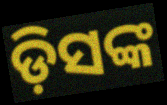
ଡ଼ିସଙ୍କ